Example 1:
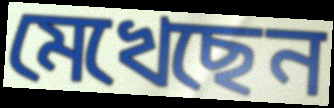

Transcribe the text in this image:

মেখেছেন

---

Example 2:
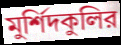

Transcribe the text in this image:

মুর্শিদকুলির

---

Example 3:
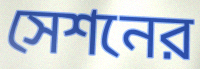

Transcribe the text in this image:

সেশনের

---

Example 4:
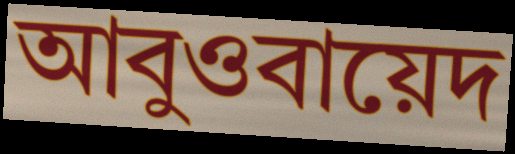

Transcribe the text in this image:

আবুওবায়েদ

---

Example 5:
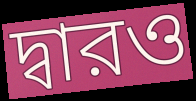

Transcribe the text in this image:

দ্বারও